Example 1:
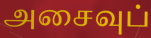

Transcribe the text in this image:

அசைவுப்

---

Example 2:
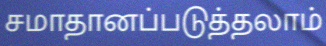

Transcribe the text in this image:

சமாதானப்படுத்தலாம்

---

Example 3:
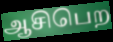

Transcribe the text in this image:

ஆசிபெற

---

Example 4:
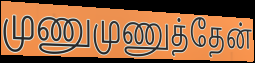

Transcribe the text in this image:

முணுமுணுத்தேன்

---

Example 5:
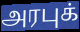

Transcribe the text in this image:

அரபுக்